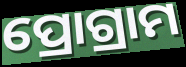
ପ୍ରୋଗ୍ରାମ